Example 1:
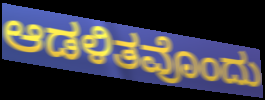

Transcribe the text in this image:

ಆಡಳಿತವೊಂದು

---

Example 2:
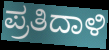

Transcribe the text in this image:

ಪ್ರತಿದಾಳಿ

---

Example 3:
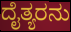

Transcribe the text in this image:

ದೈತ್ಯರನು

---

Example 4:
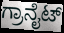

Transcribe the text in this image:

ಗ್ರಾನೈಟ್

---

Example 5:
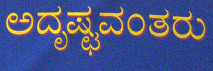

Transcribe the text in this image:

ಅದೃಷ್ಟವಂತರು